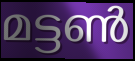
മട്ടൺ